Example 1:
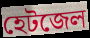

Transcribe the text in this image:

হেটজেল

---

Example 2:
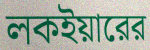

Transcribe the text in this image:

লকইয়ারের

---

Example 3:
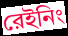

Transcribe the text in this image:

রেইনিং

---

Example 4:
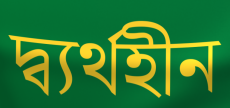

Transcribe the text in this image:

দ্ব্যর্থহীন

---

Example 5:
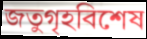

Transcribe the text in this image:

জতুগৃহবিশেষ